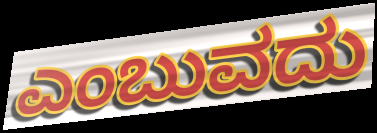
ಎಂಬುವದು